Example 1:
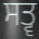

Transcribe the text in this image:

ਸਤ੍ਵ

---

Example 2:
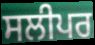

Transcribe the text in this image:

ਸਲੀਪਰ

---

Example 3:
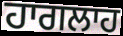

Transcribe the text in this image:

ਹਾਗਲਾਹ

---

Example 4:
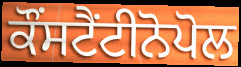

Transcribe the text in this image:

ਕੌਂਸਟੈਂਟੀਨੋਪੋਲ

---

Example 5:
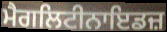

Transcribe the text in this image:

ਮੈਗਲਿਟੀਨਾਇਡਜ਼